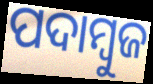
ପଦାମ୍ବୁଜ